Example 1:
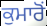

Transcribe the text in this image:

ਕੁਮਾਰੋਂ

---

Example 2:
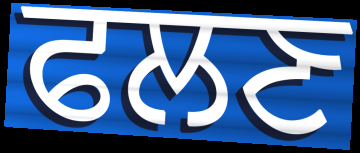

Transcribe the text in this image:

ਫਲਣ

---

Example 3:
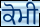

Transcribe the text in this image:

ਕੋਮੀ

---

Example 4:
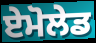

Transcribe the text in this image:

ਏਮੋਲੇਡ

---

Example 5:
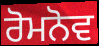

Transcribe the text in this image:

ਰੋਮਨੋਵ